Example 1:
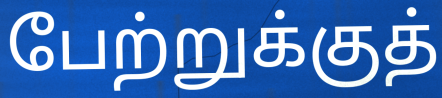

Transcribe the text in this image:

பேற்றுக்குத்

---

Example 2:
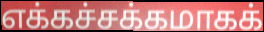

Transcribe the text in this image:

எக்கச்சக்கமாகக்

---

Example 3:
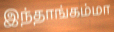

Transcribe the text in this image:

இந்தாங்கம்மா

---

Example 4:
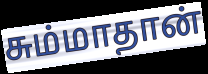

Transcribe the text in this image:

சும்மாதான்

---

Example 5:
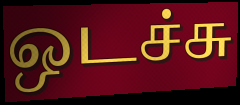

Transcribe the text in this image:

ஒடச்சு